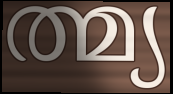
ത്മ്യ